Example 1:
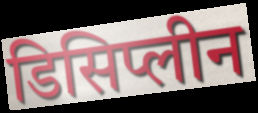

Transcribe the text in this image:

डिसिप्लीन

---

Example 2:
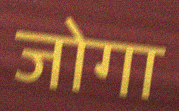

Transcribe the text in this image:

जोगा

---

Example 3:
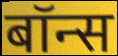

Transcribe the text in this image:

बॉन्स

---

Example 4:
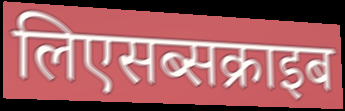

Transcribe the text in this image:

लिएसब्सक्राइब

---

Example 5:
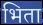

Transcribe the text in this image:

भिता